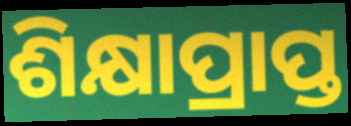
ଶିକ୍ଷାପ୍ରାପ୍ତ